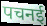
पचनई